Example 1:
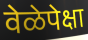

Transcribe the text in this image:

वेळेपेक्षा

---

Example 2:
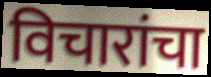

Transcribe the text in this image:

विचारांचा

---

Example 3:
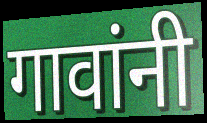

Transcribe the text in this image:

गावांनी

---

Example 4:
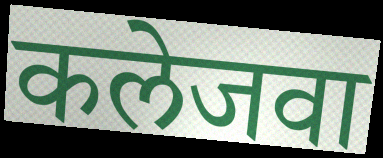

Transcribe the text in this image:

कलेजवा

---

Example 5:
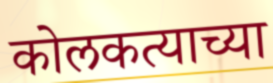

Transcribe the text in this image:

कोलकत्याच्या